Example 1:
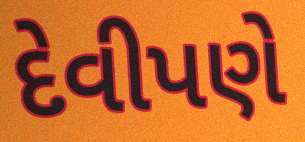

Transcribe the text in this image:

દેવીપણે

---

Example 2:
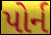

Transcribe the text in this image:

પોર્ન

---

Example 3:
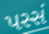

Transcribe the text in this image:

પસ્સં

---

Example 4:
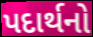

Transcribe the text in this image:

પદાર્થનો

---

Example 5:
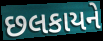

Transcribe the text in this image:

છલકાયને